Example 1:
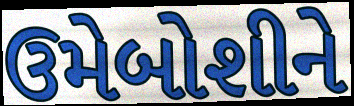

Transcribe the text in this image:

ઉમેબોશીને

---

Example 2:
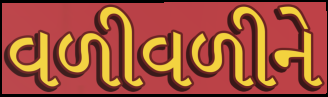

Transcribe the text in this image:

વળીવળીને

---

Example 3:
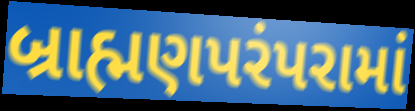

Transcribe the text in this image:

બ્રાહ્મણપરંપરામાં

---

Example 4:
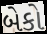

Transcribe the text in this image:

બેકો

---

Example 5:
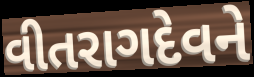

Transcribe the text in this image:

વીતરાગદેવને